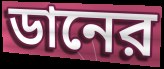
ডানের